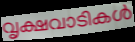
വൃക്ഷവാടികൾ